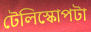
টেলিস্কোপটা